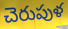
చెరుపుళ